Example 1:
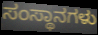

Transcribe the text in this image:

ಸಂಸ್ಥಾನಗಳು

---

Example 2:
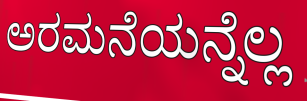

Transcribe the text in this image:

ಅರಮನೆಯನ್ನೆಲ್ಲ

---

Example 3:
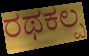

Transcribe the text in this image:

ರಥಕಲ್ಪ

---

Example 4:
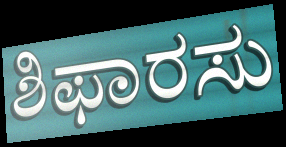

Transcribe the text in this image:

ಶಿಫಾರಸು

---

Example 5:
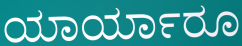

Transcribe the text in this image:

ಯಾರ್ಯಾರೂ